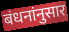
बंधनांनुसार